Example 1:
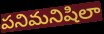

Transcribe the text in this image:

పనిమనిషిలా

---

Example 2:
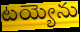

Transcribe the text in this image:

టయ్యెను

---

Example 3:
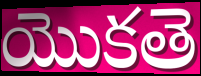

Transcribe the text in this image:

యొకతె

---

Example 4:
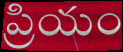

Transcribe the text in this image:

ప్రియం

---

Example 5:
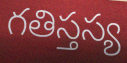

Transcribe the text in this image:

గతిస్తస్య